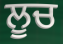
ਲੂਚ